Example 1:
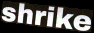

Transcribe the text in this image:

shrike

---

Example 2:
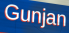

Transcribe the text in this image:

Gunjan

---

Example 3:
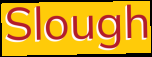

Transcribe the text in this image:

Slough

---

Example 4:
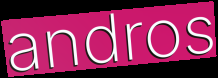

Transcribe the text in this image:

andros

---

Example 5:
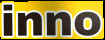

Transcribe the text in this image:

inno